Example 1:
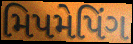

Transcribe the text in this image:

મિપમેપિંગ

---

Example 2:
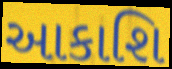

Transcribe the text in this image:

આકાશિ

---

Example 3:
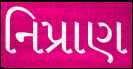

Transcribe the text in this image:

નિપ્રાણ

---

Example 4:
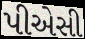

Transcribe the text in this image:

પીએસી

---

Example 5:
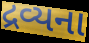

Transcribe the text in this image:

દ્રવ્યના